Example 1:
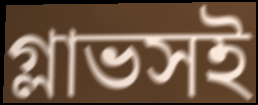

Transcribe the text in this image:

গ্লাভসই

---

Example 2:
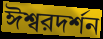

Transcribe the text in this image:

ঈশ্বরদর্শন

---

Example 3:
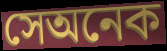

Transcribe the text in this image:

সেঅনেক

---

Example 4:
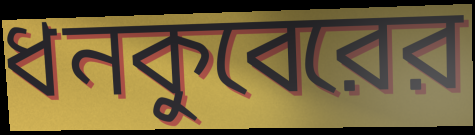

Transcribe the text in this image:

ধনকুবেরের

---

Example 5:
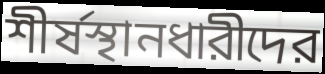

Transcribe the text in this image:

শীর্ষস্থানধারীদের